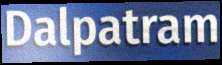
Dalpatram